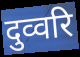
दुव्वरि